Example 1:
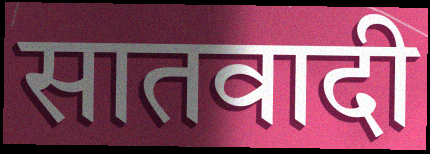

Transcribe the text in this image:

सातवादी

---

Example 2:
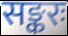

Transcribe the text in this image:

सङ्करः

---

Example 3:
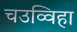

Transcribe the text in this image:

चउव्विहा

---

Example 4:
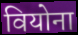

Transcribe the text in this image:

वियोना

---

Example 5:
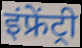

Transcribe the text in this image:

इंफ्रेंट्री